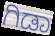
ಗಿಡಾ